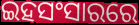
ଇହସଂସାରରେ